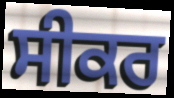
ਸੀਕਰ